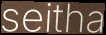
seitha